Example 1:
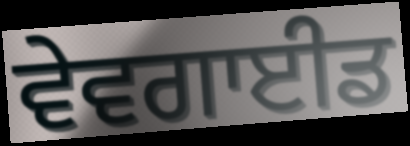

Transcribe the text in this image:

ਵੇਵਗਾਈਡ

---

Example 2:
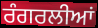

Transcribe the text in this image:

ਰੰਗਰਲੀਆਂ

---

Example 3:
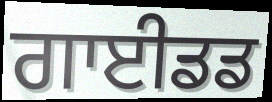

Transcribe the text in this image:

ਗਾਈਡਡ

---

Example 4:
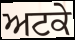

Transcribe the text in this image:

ਅਟਕੇ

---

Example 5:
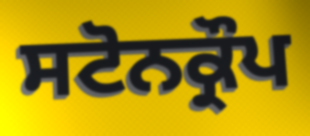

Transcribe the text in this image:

ਸਟੋਨਕ੍ਰੌਪ